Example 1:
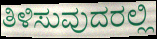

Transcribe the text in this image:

ತಿಳಿಸುವುದರಲ್ಲಿ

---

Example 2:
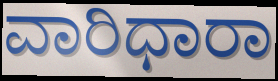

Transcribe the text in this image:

ವಾರಿಧಾರಾ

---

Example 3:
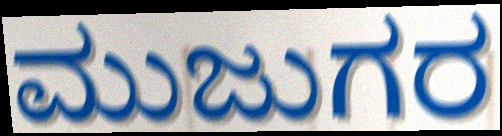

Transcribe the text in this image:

ಮುಜುಗರ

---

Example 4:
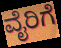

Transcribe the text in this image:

ವೈರಿಗೆ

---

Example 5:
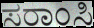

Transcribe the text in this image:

ಸರಾಂಸಿ